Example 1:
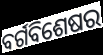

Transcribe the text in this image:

ବର୍ଗବିଶେଷର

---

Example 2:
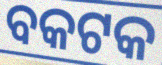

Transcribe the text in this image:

ବକଟକ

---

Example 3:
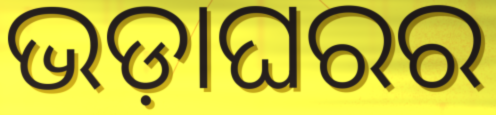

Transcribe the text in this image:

ଭଡ଼ାଘରର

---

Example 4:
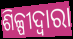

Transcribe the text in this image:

ଶିଳ୍ପୀଦ୍ୱାରା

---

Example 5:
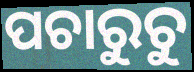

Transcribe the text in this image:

ପଚାରୁଚୁ